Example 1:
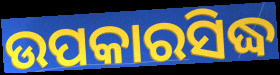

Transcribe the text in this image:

ଉପକାରସିଦ୍ଧ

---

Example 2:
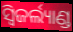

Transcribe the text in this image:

ସ୍ୱିଜର୍ଲ୍ୟାଣ୍ଡ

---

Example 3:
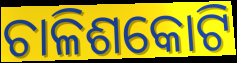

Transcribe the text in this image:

ଚାଳିଶକୋଟି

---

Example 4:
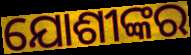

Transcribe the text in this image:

ଯୋଶୀଙ୍କର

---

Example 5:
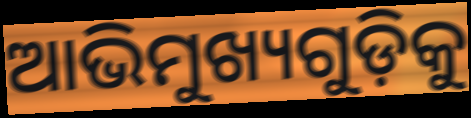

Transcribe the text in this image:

ଆଭିମୁଖ୍ୟଗୁଡ଼ିକୁ